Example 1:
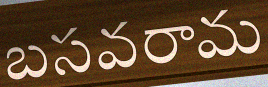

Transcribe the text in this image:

బసవరామ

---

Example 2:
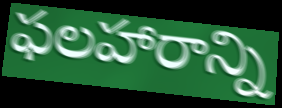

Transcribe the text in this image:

ఫలహారాన్ని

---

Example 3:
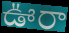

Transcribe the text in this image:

ఊరా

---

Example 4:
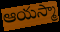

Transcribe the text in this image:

ఆయస్మా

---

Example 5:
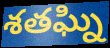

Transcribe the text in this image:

శతఘ్ని